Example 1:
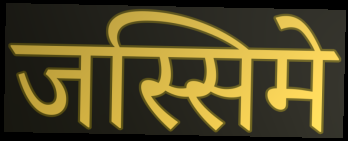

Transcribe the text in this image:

जस्सिमे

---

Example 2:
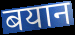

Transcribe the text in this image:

बयान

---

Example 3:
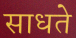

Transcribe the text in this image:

साधते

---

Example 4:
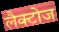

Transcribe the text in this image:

लैक्टोज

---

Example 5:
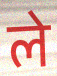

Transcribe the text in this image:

ले